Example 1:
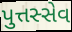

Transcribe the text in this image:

પુત્તસ્સેવ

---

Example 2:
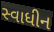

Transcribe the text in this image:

સ્વાધીન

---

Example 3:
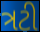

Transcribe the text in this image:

ત્રટી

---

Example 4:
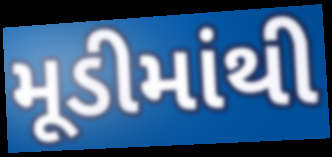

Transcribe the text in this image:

મૂડીમાંથી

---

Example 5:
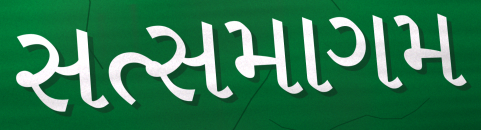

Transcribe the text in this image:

સત્સમાગમ